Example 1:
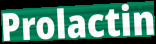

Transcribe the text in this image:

Prolactin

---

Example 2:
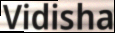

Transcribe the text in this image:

Vidisha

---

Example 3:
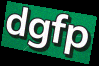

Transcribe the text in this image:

dgfp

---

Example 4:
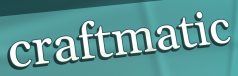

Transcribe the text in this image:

craftmatic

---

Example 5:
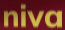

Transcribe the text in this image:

niva